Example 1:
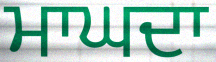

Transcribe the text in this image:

ਮਾਘਦਾ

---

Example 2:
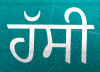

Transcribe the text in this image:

ਹੱਸੀ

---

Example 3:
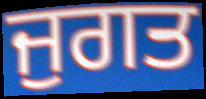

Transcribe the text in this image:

ਜੁਗਤ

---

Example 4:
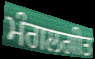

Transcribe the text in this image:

ਮੰਗਲਗੀਤ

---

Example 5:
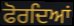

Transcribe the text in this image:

ਫੋਰਦਿਆਂ